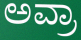
ಅವ್ರಾ